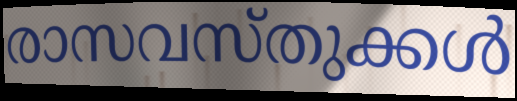
രാസവസ്തുക്കൾ